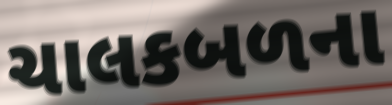
ચાલકબળના